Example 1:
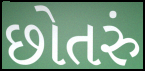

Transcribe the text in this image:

છોતરું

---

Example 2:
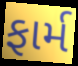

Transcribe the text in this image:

ફાર્મ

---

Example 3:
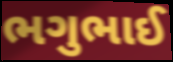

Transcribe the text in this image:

ભગુભાઈ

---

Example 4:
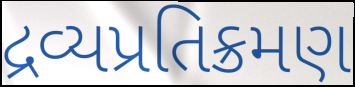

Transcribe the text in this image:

દ્રવ્યપ્રતિક્રમણ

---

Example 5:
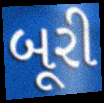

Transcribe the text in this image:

બૂરી